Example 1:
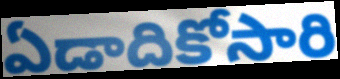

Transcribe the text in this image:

ఏడాదికోసారి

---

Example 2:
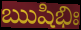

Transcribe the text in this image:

ఋషిభిః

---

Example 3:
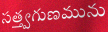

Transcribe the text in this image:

సత్త్వగుణమును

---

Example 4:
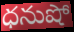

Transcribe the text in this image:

ధనుషో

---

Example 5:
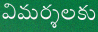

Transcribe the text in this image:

విమర్శలకు